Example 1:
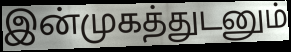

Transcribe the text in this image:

இன்முகத்துடனும்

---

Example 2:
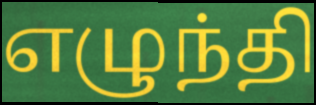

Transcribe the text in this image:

எழுந்தி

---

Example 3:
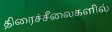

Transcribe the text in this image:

திரைச்சீலைகளில்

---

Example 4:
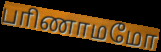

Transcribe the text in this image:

பரிணாமமோ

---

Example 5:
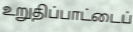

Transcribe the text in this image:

உறுதிப்பாட்டைப்